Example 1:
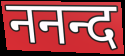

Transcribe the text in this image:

ननन्द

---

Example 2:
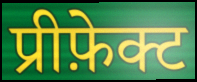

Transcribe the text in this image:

प्रीफ़ेक्ट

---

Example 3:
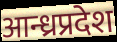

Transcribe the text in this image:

आन्ध्रप्रदेश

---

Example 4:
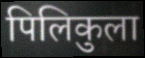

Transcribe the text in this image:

पिलिकुला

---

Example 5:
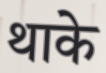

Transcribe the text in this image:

थाके